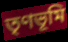
তৃণভূমি